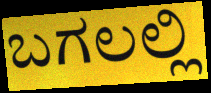
ಬಗಲಲ್ಲಿ